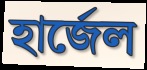
হার্জেল